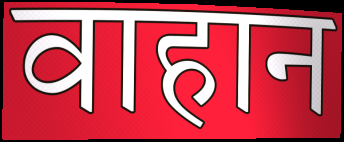
वाहान